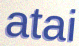
atai